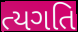
ત્યગતિ